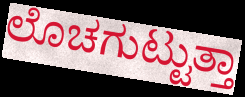
ಲೊಚಗುಟ್ಟುತ್ತಾ